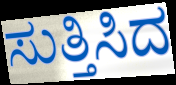
ಸುತ್ತಿಸಿದ